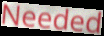
Needed